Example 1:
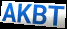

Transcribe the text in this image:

AKBT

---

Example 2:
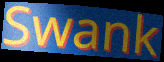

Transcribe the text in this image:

Swank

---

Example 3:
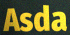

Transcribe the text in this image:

Asda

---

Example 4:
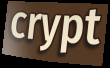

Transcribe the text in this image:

crypt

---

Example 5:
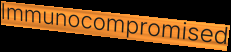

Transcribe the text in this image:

Immunocompromised